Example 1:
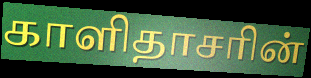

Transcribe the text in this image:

காளிதாசரின்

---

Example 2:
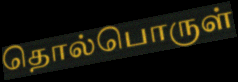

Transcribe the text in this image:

தொல்பொருள்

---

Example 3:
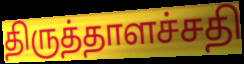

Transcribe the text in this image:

திருத்தாளச்சதி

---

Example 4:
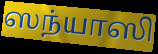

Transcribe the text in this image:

ஸந்யாஸி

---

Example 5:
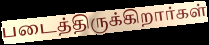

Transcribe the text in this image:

படைத்திருக்கிறார்கள்